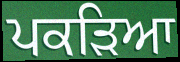
ਪਕੜਿਆ